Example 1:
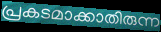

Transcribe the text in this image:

പ്രകടമാക്കാതിരുന്ന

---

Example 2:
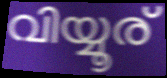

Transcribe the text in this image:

വിയ്യൂര്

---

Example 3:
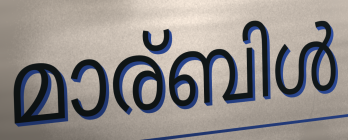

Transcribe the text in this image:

മാര്ബിൾ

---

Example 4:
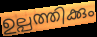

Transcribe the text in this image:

ഉല്പത്തിക്കും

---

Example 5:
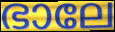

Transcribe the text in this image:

ഭാലേ